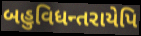
બહુવિધન્તરાયેપિ